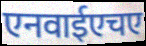
एनवाईएचए